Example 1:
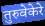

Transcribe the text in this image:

तुरुवेकेरे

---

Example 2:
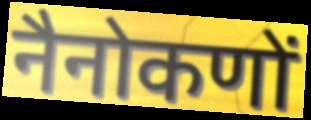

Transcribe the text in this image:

नैनोकणों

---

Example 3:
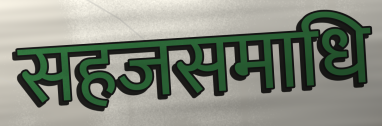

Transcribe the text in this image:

सहजसमाधि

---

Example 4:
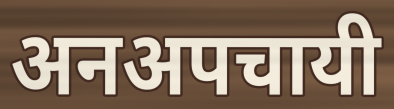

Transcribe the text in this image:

अनअपचायी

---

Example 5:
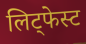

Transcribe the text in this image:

लिट्फेस्ट